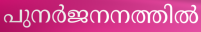
പുനർജനനത്തിൽ